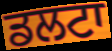
ਡਲਟਾ